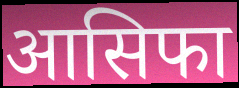
आसिफा